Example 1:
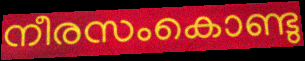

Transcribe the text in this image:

നീരസംകൊണ്ടു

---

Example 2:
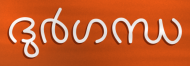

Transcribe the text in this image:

ദുർഗന്ധ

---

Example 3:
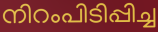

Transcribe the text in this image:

നിറംപിടിപ്പിച്ച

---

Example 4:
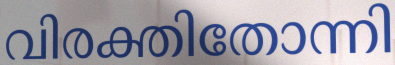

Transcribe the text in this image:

വിരക്തിതോന്നി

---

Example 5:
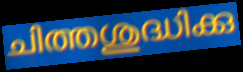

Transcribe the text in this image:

ചിത്തശുദ്ധിക്കു